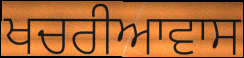
ਖਚਰੀਆਵਾਸ